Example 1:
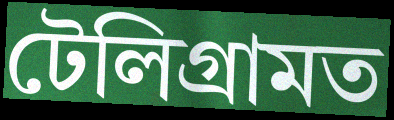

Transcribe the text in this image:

টেলিগ্ৰামত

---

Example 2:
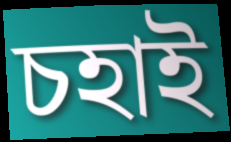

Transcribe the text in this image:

চহাই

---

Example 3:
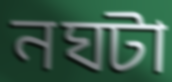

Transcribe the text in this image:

নঘটা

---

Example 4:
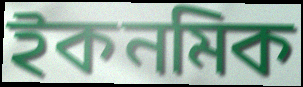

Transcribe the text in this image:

ইকনমিক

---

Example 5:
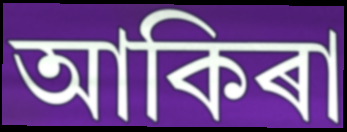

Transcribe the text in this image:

আকিৰা